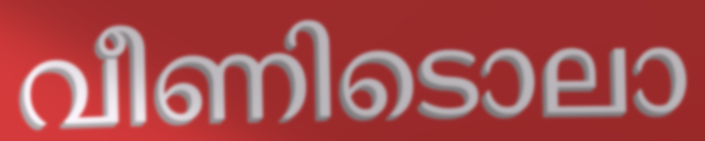
വീണിടൊലാ